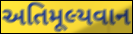
અતિમૂલ્યવાન